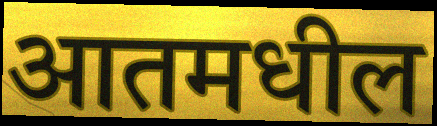
आतमधील